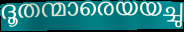
ദൂതന്മാരെയയച്ചു